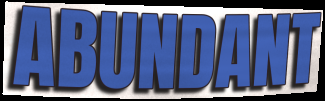
ABUNDANT